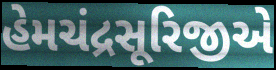
હેમચંદ્રસૂરિજીએ